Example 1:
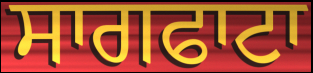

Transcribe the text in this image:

ਸਾਗਫਾਟਾ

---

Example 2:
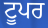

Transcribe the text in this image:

ਟੂਪਰ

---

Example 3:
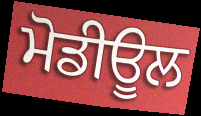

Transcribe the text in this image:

ਮੋਡੀਊਲ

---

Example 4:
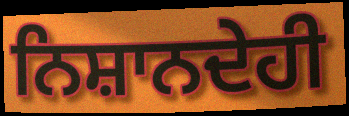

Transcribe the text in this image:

ਨਿਸ਼ਾਨਦੇਹੀ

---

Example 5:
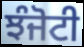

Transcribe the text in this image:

ਝੰਜੋਟੀ